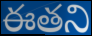
ఈతని